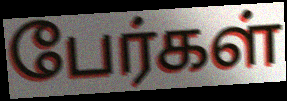
பேர்கள்